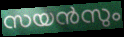
സയൻസും